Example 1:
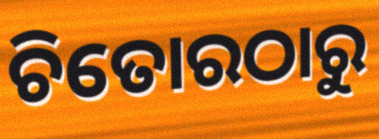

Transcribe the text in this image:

ଚିତୋରଠାରୁ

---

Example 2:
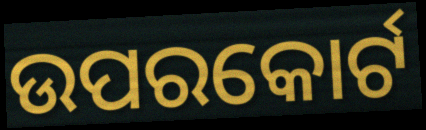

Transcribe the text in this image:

ଉପରକୋର୍ଟ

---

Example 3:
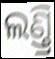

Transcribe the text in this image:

ଲଣ୍ତ୍ରି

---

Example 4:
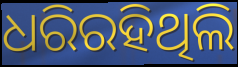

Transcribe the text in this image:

ଧରିରହିଥିଲି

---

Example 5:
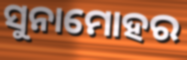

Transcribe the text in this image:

ସୁନାମୋହର